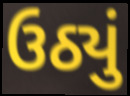
ઉઠ્યું